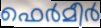
ഫെർമീർ